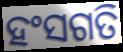
ହଂସଗତି